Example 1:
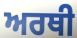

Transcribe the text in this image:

ਅਰਥੀ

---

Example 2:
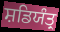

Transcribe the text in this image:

ਸ਼ਡਿਯੰਤ੍ਰ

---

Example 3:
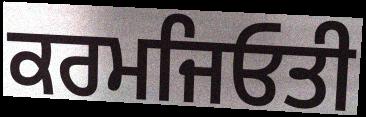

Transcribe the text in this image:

ਕਰਮਜਿਓਤੀ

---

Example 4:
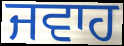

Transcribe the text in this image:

ਜਵਾਹ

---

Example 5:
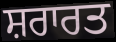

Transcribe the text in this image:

ਸ਼ਰਾਰਤ